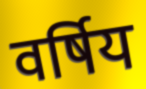
वर्षिय